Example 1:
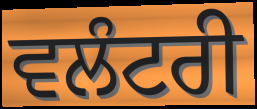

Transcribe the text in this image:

ਵਲੰਟਰੀ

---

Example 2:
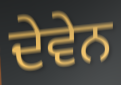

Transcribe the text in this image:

ਦੇਵੇਨ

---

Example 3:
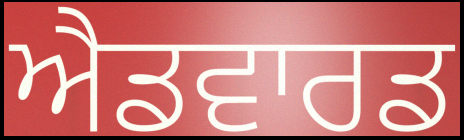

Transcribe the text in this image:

ਐਡਵਾਰਡ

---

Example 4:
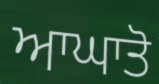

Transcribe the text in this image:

ਆਘਾਤੋ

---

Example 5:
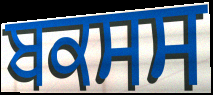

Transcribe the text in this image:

ਬਕਸਸ